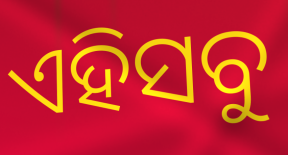
ଏହିସବୁ